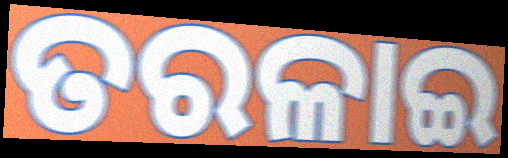
ତରଳାଇ